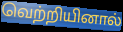
வெற்றியினால்